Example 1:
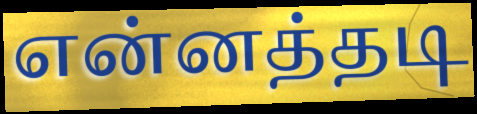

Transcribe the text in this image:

என்னத்தடி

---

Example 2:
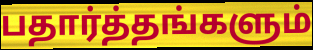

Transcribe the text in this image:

பதார்த்தங்களும்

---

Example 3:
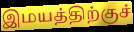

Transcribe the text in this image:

இமயத்திற்குச்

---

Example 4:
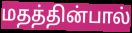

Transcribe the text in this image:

மதத்தின்பால்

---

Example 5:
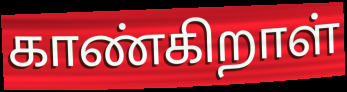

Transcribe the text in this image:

காண்கிறாள்